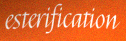
esterification